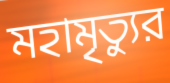
মহামৃত্যুর